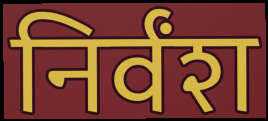
निर्वंश